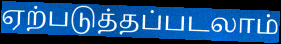
ஏற்படுத்தப்படலாம்